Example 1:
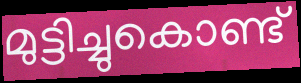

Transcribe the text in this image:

മുട്ടിച്ചുകൊണ്ട്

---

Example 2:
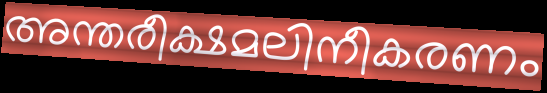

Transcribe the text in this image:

അന്തരീക്ഷമലിനീകരണം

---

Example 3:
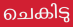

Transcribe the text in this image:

ചെകിടു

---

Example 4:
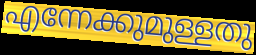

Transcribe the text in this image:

എന്നേക്കുമുള്ളതു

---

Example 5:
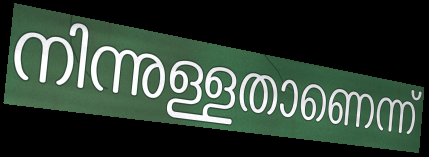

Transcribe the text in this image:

നിന്നുള്ളതാണെന്ന്